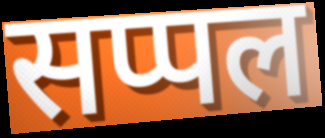
सप्पल